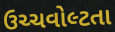
ઉચ્ચવોલ્ટતા